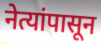
नेत्यांपासून